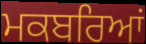
ਮਕਬਰਿਆਂ